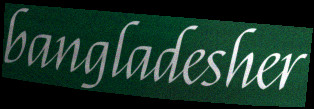
bangladesher